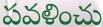
పవళించు